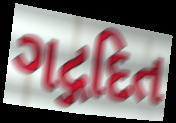
ગદ્ગદિત